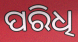
ପରିଧି